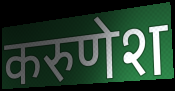
करुणेश